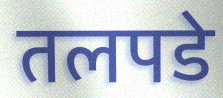
तलपडे